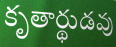
కృతార్థుడవు